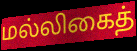
மல்லிகைத்